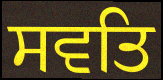
ਸਵਤਿ